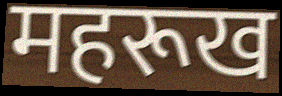
महरूख